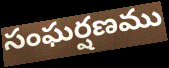
సంఘర్షణము